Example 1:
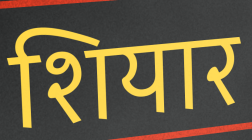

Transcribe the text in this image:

शियार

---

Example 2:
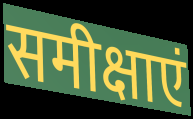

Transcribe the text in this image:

समीक्षाएं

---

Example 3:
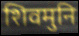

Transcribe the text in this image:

शिवमुनि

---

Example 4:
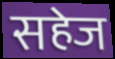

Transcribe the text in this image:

सहेज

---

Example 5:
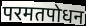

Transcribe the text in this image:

परमतपोधन